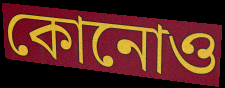
কোনোও